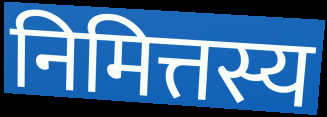
निमित्तस्य